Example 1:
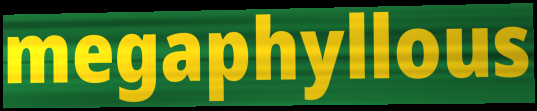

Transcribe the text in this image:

megaphyllous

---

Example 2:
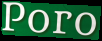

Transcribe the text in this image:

Poro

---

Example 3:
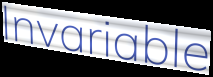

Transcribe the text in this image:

Invariable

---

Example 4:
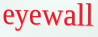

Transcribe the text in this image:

eyewall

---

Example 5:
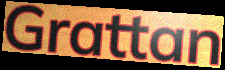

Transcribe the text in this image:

Grattan